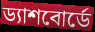
ড্যাশবোর্ডে